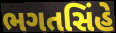
ભગતસિંહે